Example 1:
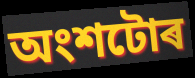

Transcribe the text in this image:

অংশটোৰ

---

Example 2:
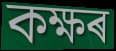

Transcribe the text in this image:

কক্ষৰ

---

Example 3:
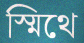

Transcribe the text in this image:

স্মিথে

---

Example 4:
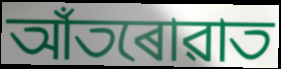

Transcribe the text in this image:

আঁতৰোৱাত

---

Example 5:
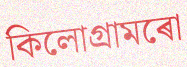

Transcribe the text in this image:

কিলোগ্ৰামৰো